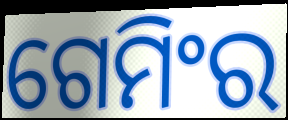
ଗେମିଂର